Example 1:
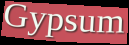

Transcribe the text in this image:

Gypsum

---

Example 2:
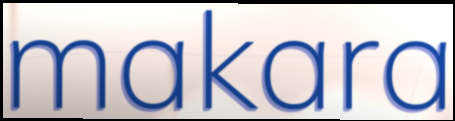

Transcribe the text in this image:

makara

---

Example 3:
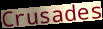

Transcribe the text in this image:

Crusades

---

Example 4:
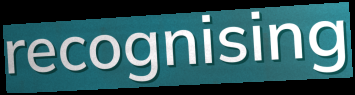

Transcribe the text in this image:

recognising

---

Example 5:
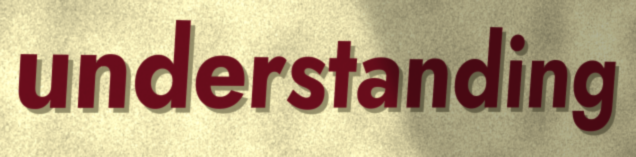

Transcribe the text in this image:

understanding